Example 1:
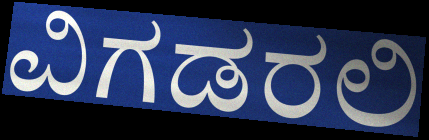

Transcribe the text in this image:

ವಿಗಡರಲಿ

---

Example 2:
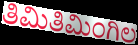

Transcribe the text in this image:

ತಿಮಿತಿಮಿಂಗಿಲ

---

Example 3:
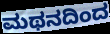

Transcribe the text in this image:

ಮಥನದಿಂದ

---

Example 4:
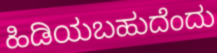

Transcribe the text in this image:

ಹಿಡಿಯಬಹುದೆಂದು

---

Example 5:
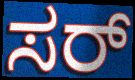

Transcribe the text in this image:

ಸರ್